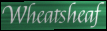
Wheatsheaf